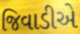
જિવાડીએ